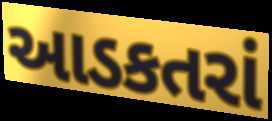
આડકતરાં